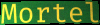
Mortel